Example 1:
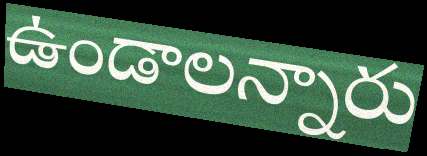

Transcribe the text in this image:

ఉండాలన్నారు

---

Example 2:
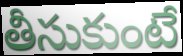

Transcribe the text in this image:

తీసుకుంటే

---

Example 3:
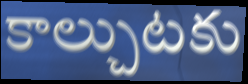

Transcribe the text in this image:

కాల్చుటకు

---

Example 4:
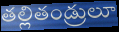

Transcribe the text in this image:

తల్లితండ్రులూ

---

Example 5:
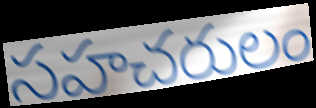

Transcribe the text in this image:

సహచరులం